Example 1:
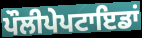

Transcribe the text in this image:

ਪੌਲੀਪੇਪਟਾਇਡਾਂ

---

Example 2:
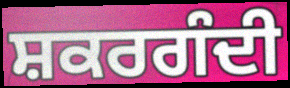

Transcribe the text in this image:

ਸ਼ਕਰਗੰਦੀ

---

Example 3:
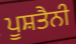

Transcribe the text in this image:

ਪੂਸ਼ਤੈਨੀ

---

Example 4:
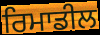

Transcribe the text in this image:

ਰਿਮਾਡੀਲ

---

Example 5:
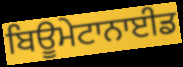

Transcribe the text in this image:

ਬਿਊਮੇਟਾਨਾਈਡ